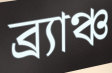
ব্র্যাঞ্চ